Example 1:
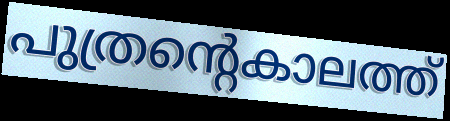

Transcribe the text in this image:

പുത്രന്റെകാലത്ത്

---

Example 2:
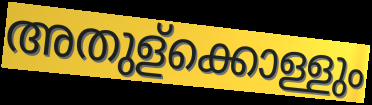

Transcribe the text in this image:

അതുള്ക്കൊള്ളും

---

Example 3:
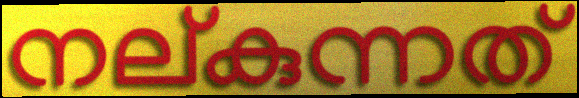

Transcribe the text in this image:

നല്കുന്നത്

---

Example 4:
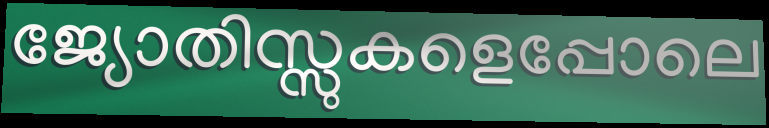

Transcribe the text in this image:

ജ്യോതിസ്സുകളെപ്പോലെ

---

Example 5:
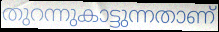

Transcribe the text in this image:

തുറന്നുകാട്ടുന്നതാണ്